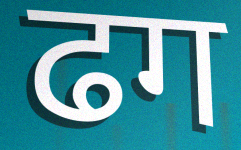
ढग